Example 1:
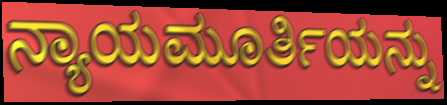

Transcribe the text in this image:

ನ್ಯಾಯಮೂರ್ತಿಯನ್ನು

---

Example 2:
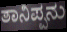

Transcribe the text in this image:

ತಾನಿಪ್ಪನು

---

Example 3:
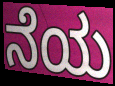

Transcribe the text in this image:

ನೆಯ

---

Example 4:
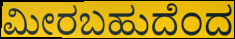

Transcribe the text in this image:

ಮೀರಬಹುದೆಂದ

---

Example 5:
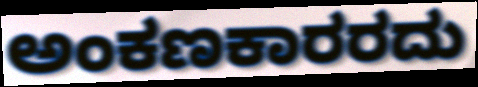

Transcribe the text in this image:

ಅಂಕಣಕಾರರದು